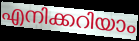
എനിക്കറിയാം